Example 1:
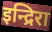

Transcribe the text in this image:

इन्द्रिरा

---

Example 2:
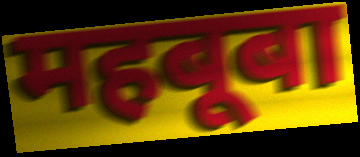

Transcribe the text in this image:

महबूबा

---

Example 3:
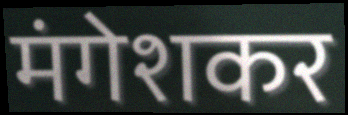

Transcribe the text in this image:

मंगेशकर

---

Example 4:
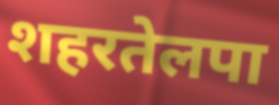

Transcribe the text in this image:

शहरतेलपा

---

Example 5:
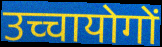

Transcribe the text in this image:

उच्‍चायोगों